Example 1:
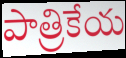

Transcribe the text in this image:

పాత్రికేయ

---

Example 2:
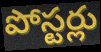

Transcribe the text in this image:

పోస్టర్లు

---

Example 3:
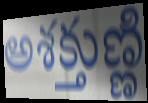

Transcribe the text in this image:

అశక్తుణ్ణి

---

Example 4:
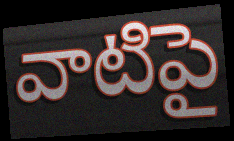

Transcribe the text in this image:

వాటిపై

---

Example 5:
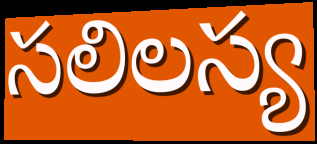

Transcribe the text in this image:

సలిలస్య